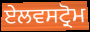
ਏਲਵਸਟ੍ਰੋਮ